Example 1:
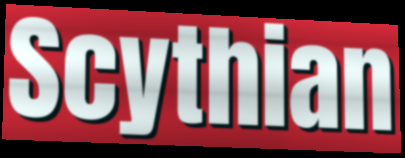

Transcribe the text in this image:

Scythian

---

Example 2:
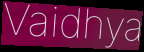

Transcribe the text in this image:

Vaidhya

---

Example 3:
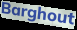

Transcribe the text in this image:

Barghout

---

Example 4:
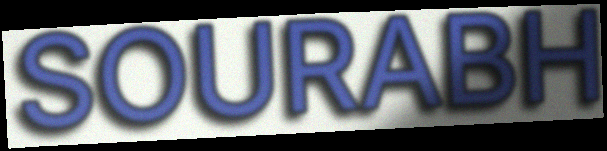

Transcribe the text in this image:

SOURABH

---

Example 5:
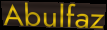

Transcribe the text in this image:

Abulfaz